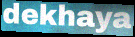
dekhaya